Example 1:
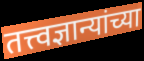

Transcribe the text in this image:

तत्त्वज्ञान्यांच्या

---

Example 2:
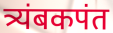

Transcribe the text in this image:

त्र्यंबकपंत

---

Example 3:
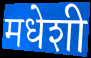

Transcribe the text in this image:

मधेशी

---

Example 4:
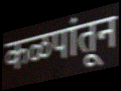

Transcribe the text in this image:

कळपांतून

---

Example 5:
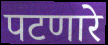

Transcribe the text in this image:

पटणारे